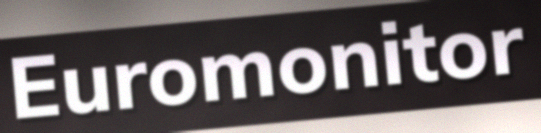
Euromonitor